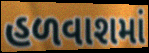
હળવાશમાં